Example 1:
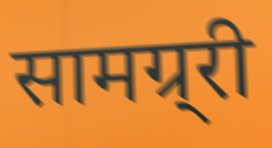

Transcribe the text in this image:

सामग्र्री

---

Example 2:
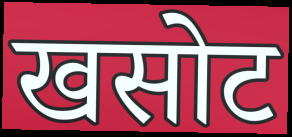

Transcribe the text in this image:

खसोट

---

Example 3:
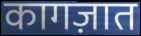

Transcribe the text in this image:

कागज़ात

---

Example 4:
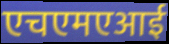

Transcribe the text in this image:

एचएमएआई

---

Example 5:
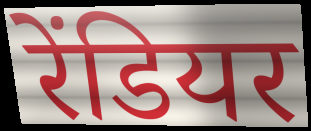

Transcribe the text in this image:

रेंडियर